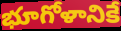
భూగోళానికే